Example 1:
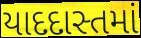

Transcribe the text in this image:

યાદદાસ્તમાં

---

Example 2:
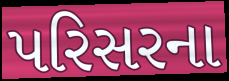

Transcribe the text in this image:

પરિસરના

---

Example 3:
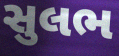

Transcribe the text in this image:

સુલભ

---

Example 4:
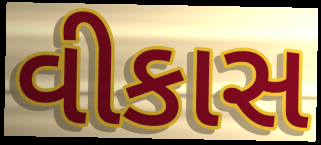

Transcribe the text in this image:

વીકાસ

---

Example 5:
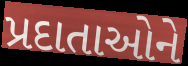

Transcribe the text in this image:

પ્રદાતાઓને